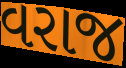
વરાજ